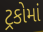
ટ્રકોમાં